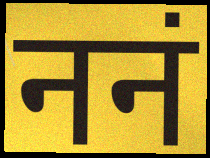
ननं